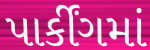
પાર્કીંગમાં